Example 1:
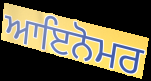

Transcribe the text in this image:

ਆਇਨੋਮਰ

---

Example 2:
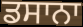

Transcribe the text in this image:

ਡਸਾਨਾ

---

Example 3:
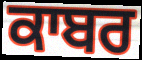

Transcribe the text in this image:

ਕਾਬਰ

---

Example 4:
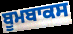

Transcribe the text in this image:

ਬੂਮਬਾਕਸ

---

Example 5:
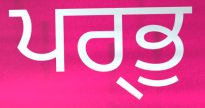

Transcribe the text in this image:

ਪਰ੍ਭੁ